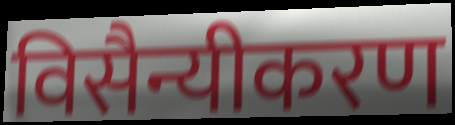
विसैन्यीकरण